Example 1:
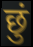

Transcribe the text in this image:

छुं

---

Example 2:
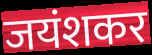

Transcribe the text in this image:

जयंशकर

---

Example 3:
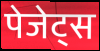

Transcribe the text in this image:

पेजेट्स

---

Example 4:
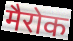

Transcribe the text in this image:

मैरोक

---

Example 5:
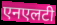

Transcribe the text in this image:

एनएलटी